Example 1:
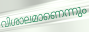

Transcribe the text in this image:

വിശാലമാണെന്നും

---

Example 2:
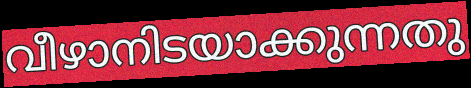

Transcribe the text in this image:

വീഴാനിടയാക്കുന്നതു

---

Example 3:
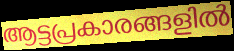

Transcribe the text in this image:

ആട്ടപ്രകാരങ്ങളിൽ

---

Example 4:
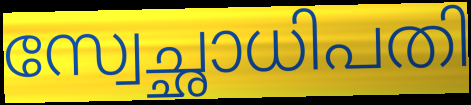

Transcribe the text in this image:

സ്വേച്ഛാധിപതി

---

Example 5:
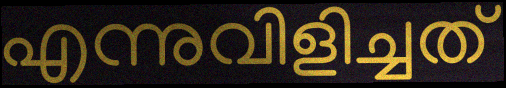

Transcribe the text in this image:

എന്നുവിളിച്ചത്